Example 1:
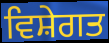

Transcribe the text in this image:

ਵਿਸ਼ੇਗਤ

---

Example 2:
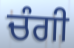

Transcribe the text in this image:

ਚੰਗੀ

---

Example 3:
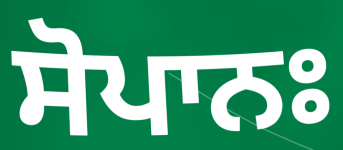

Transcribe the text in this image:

ਸੋਪਾਨਃ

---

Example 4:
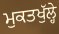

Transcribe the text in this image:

ਮੁਕਤਖੁੱਲ੍ਹੇ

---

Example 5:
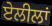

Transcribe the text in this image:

ਏਲੀਲਾਂ